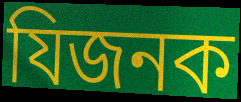
যিজনক